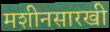
मशीनसारखी